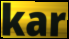
kar